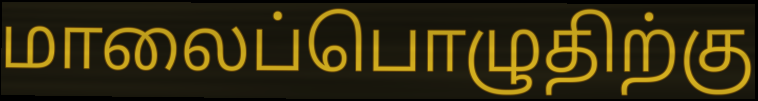
மாலைப்பொழுதிற்கு